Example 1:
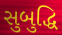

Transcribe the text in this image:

સુબુદ્ધિ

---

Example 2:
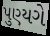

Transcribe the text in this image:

પુણ્યગે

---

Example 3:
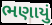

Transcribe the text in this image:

ભણાયું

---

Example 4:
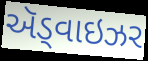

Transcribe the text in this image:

ઍડ્વાઇઝર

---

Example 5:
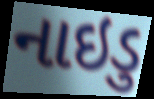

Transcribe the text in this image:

નાઇડુ